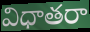
విధాతరా